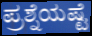
ಪ್ರಶ್ನೆಯಷ್ಟೆ